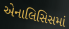
એનાલિસિસમાં